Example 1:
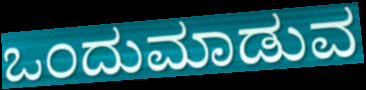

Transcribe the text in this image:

ಒಂದುಮಾಡುವ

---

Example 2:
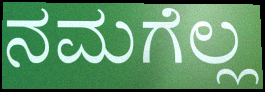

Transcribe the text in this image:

ನಮಗೆಲ್ಲ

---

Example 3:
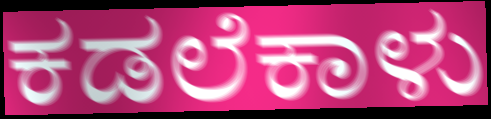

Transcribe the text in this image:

ಕಡಲೆಕಾಳು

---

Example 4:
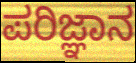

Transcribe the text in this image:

ಪರಿಜ್ಞಾನ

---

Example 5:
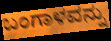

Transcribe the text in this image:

ಬಂಗಾಳವನ್ನು